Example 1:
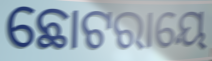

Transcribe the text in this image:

ଛୋଟରାୟେ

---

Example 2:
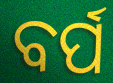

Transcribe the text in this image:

ବର୍ପ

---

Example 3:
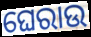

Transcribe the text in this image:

ଘେରାଉ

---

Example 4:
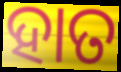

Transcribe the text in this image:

ହାତ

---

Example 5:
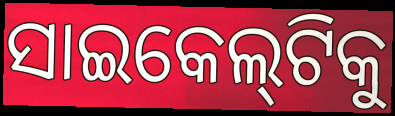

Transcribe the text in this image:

ସାଇକେଲ୍‌ଟିକୁ